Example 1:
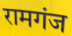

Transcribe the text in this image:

रामगंज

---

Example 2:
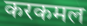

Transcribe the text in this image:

करकमल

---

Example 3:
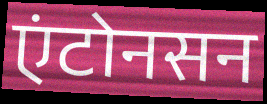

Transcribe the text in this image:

एंटोनसन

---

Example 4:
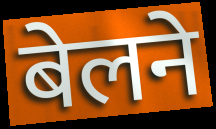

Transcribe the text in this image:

बेलने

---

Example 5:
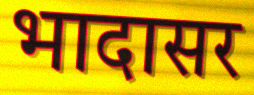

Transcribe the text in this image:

भादासर